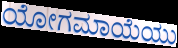
ಯೋಗಮಾಯೆಯು